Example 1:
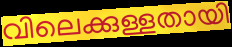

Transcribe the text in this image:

വിലെക്കുള്ളതായി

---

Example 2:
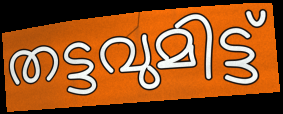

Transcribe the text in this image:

തട്ടവുമിട്ട്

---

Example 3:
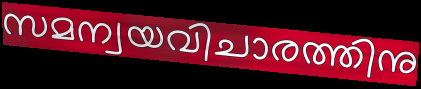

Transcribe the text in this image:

സമന്വയവിചാരത്തിനു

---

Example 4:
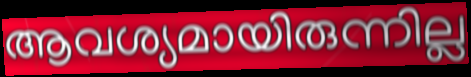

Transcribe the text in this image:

ആവശ്യമായിരുന്നില്ല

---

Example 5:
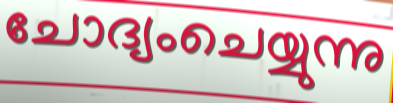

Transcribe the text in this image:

ചോദ്യംചെയ്യുന്നു